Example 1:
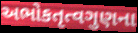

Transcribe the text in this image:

અભોકતૃત્વગુણના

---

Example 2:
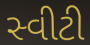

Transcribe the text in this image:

સ્વીટી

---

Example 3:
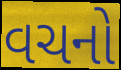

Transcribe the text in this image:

વચનો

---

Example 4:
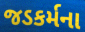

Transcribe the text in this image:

જડકર્મના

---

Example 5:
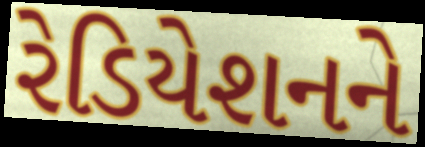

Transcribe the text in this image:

રેડિયેશનને